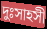
দুঃসাহসী